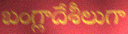
బంగ్లాదేశీలుగా